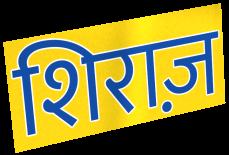
शिराज़